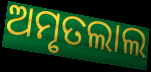
ଅମୃତଲାଲ